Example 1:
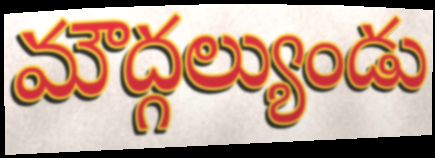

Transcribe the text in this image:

మౌద్గల్యుండు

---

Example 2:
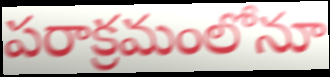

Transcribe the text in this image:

పరాక్రమంలోనూ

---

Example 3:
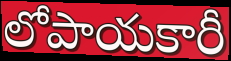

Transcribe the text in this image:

లోపాయకారీ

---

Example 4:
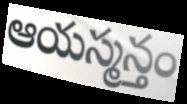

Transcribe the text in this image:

ఆయస్మన్తం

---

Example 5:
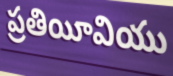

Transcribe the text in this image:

ప్రతియీవియు